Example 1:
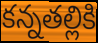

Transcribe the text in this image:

కన్నతల్లికి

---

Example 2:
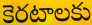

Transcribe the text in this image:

కెరటాలకు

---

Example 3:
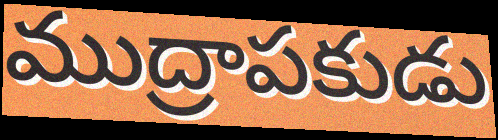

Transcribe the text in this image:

ముద్రాపకుడు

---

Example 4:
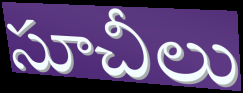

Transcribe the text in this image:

సూచీలు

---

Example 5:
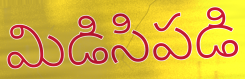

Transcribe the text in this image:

మిడిసిపడి